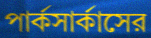
পার্কসার্কাসের